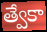
త్వేకా